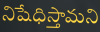
నిషేధిస్తామని